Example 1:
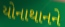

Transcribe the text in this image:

યોનાથાનને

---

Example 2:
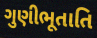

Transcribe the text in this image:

ગુણીભૂતાતિ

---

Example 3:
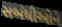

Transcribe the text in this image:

સબંધીઓને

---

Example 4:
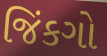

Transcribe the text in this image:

જિંકગો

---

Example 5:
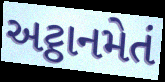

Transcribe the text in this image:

અટ્ઠાનમેતં